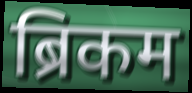
ब्रिकम